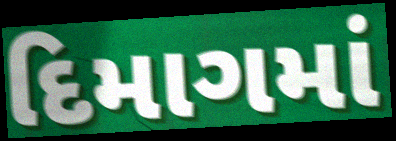
દિમાગમાં